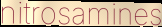
nitrosamines